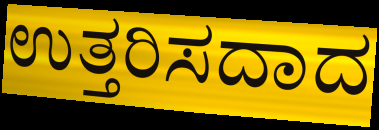
ಉತ್ತರಿಸದಾದ